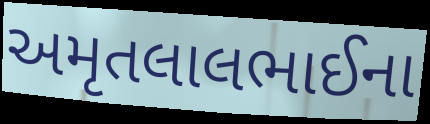
અમૃતલાલભાઈના